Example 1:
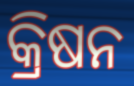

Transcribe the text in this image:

କ୍ରିଷନ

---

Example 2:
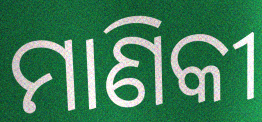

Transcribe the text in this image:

ମାଣିକୀ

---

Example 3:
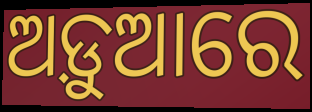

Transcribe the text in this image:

ଅଡ଼ୁଆରେ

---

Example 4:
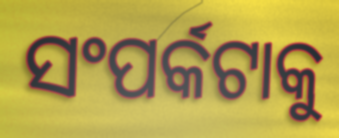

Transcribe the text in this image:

ସଂପର୍କଟାକୁ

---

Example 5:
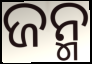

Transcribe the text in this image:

ଜନ୍ମ